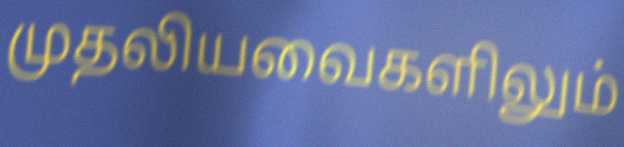
முதலியவைகளிலும்